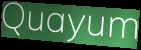
Quayum